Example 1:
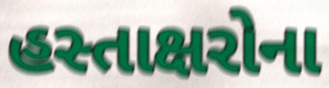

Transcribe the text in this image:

હસ્તાક્ષરોના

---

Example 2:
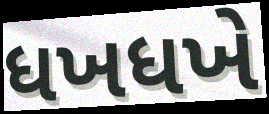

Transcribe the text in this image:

ધખધખે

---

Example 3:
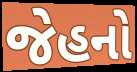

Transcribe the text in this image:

જેહનો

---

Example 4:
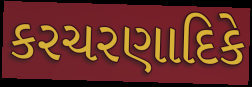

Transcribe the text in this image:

કરચરણાદિકે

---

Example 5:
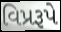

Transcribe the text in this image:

વિપ્રરૂપે